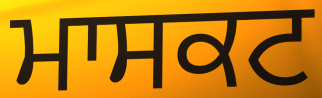
ਮਾਸਕਟ